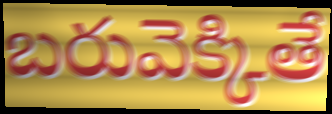
బరువెక్కితే